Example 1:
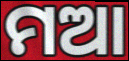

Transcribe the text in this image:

ମଆ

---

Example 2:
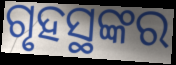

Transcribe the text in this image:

ଗୃହସ୍ଥଙ୍କର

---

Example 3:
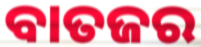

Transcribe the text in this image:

ବାତଜର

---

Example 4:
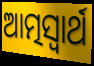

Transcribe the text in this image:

ଆତ୍ମସ୍ଵାର୍ଥ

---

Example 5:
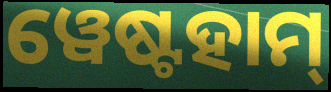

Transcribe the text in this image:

ୱେଷ୍ଟହାମ୍